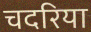
चदरिया